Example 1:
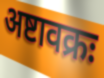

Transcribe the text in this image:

अष्टावक्रः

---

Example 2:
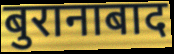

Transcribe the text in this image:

बुरानाबाद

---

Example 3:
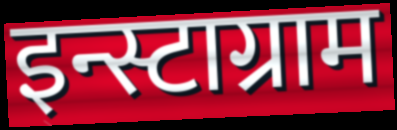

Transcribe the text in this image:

इन्स्टाग्राम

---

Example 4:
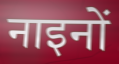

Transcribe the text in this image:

नाइनों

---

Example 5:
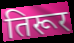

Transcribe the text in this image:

तिरूर